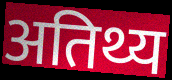
अतिथ्य